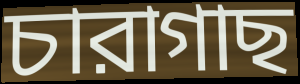
চারাগাছ